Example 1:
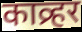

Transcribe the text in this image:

काव्र्हर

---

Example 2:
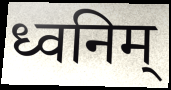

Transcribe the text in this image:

ध्वनिम्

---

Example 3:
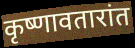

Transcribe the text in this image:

कृष्णावतारांत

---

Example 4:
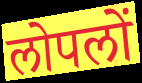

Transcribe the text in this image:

लोपलों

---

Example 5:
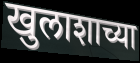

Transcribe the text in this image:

खुलाशाच्या